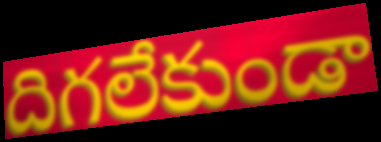
దిగలేకుండా